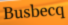
Busbecq